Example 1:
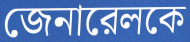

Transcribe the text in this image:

জেনারেলকে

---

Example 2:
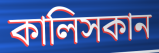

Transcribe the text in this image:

কালিসকান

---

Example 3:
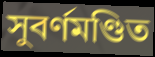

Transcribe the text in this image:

সুবর্ণমণ্ডিত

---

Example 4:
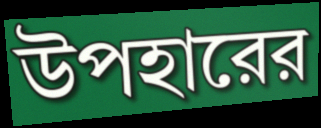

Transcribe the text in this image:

উপহারের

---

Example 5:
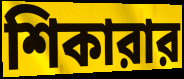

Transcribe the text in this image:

শিকারার